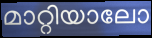
മാറ്റിയാലോ